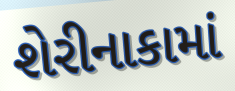
શેરીનાકામાં